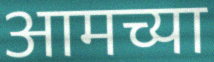
आमच्या